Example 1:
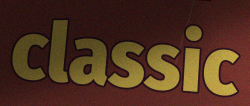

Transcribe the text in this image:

classic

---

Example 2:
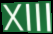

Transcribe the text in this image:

XIII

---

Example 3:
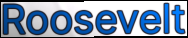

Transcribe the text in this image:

Roosevelt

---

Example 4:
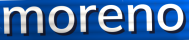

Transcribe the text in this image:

moreno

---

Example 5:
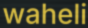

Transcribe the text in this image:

waheli